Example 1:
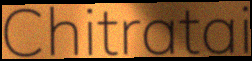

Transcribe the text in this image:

Chitratai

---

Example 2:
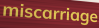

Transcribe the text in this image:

miscarriage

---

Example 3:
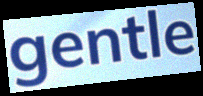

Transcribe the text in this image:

gentle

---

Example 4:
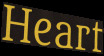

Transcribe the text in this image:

Heart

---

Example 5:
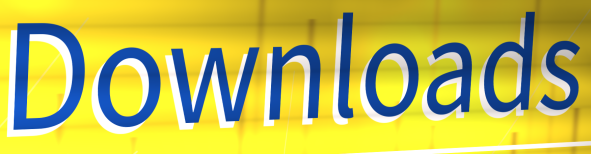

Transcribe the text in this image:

Downloads